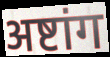
अष्टांग